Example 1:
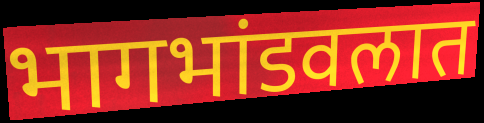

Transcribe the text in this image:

भागभांडवलात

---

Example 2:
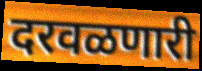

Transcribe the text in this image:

दरवळणारी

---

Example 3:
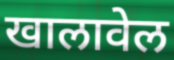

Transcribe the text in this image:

खालावेल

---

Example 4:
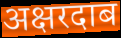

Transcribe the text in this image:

अक्षरदाब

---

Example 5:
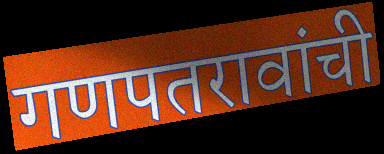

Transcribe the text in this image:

गणपतरावांची